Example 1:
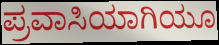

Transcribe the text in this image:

ಪ್ರವಾಸಿಯಾಗಿಯೂ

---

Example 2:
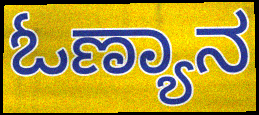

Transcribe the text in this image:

ಓಣ್ಯಾನ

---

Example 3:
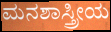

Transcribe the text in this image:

ಮನಶಾಸ್ತ್ರೀಯ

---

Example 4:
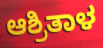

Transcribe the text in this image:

ಆಶ್ರಿತಾಳ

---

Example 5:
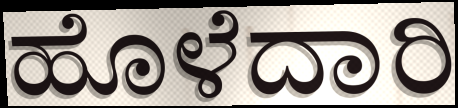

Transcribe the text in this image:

ಹೊಳೆದಾರಿ